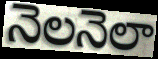
నెలనెలా